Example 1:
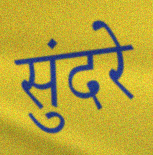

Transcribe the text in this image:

सुंदरे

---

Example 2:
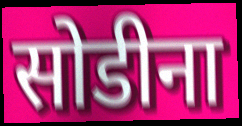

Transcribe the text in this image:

सोडीना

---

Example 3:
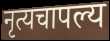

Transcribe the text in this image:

नृत्यचापल्य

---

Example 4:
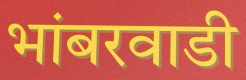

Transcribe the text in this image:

भांबरवाडी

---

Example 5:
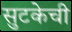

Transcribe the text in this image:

सुटकेची